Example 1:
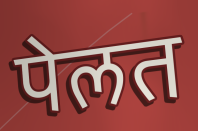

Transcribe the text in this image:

पेलत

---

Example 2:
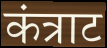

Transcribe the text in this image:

कंत्राट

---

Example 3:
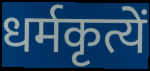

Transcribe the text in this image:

धर्मकृत्यें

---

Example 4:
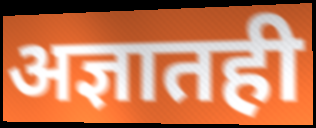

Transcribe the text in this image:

अज्ञातही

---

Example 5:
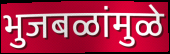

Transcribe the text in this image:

भुजबळांमुळे